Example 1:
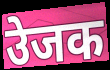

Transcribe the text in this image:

उेजक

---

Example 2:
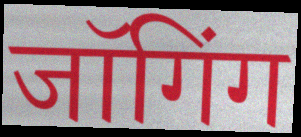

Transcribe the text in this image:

जॉगिंग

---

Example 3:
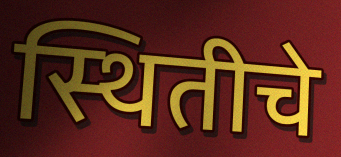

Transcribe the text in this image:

स्थितीचे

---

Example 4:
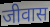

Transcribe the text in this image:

जीवास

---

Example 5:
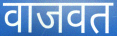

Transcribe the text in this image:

वाजवत